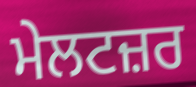
ਮੇਲਟਜ਼ਰ